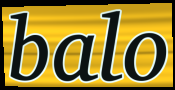
balo